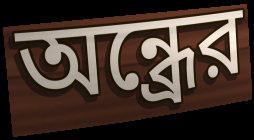
অন্ধ্রের